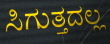
ಸಿಗುತ್ತದಲ್ಲ